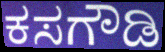
ಕಸಗೌಡಿ